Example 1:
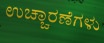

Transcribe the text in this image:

ಉಚ್ಚಾರಣೆಗಳು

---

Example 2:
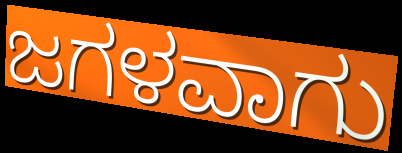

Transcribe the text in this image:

ಜಗಳವಾಗು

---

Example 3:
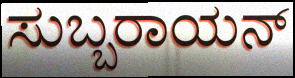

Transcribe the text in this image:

ಸುಬ್ಬರಾಯನ್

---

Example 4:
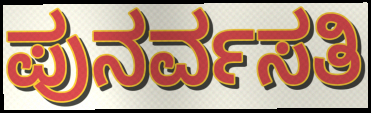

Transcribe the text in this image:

ಪುನರ್ವಸತಿ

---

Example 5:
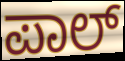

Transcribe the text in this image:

ಪಾಲ್